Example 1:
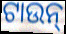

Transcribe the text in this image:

ଟାଉନ୍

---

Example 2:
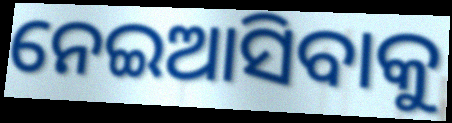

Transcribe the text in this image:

ନେଇଆସିବାକୁ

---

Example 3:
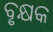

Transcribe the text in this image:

ବୃକ୍ଷକ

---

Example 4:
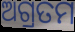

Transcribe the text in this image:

ଅଗ୍ରତମ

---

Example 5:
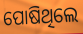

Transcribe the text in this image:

ପୋଷିଥିଲେ